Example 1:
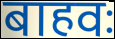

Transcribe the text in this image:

बाहवः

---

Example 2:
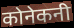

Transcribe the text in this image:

कोनेकनी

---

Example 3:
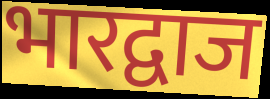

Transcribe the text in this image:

भारद्वाज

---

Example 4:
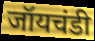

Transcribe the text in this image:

जॉयचंडी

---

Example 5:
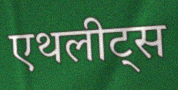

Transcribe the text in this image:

एथलीट्स